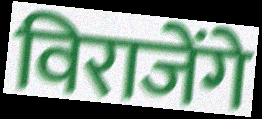
विराजेंगे